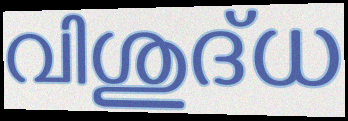
വിശുദ്‌ധ